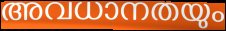
അവധാനതയും